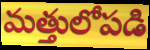
మత్తులోపడి